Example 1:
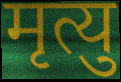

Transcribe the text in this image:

मृत्यु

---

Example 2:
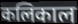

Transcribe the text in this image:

कलिकाल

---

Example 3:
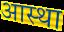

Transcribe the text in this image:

आस्था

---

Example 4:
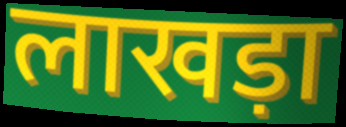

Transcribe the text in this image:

लाखड़ा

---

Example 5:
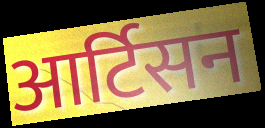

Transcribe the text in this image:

आर्टिसन